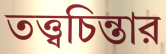
তত্ত্বচিন্তার